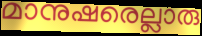
മാനുഷരെല്ലാരു